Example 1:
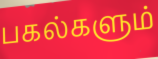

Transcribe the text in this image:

பகல்களும்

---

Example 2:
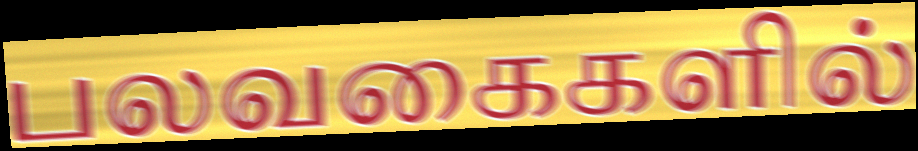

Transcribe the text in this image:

பலவகைகளில்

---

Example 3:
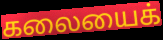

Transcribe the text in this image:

கலையைக்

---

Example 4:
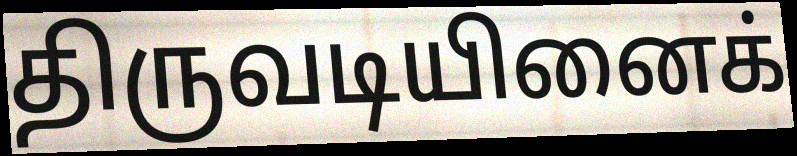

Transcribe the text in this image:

திருவடியினைக்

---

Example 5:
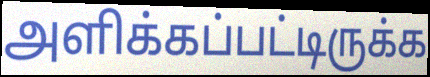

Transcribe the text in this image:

அளிக்கப்பட்டிருக்க